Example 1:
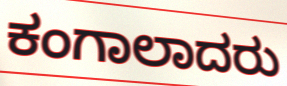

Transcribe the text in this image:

ಕಂಗಾಲಾದರು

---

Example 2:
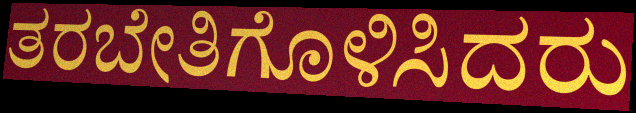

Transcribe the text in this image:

ತರಬೇತಿಗೊಳಿಸಿದರು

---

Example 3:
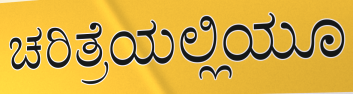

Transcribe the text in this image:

ಚರಿತ್ರೆಯಲ್ಲಿಯೂ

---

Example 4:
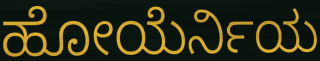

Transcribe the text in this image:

ಹೋಯೆರ್ನಿಯ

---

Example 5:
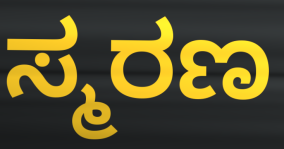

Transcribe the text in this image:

ಸ್ಮರಣ